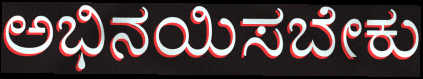
ಅಭಿನಯಿಸಬೇಕು